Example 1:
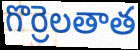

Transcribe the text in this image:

గొర్రెలతాత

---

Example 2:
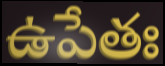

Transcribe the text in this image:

ఉపేతః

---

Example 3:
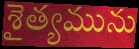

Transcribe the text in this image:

శైత్యమును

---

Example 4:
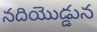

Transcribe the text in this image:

నదియొడ్డున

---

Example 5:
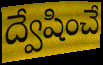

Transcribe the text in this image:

ద్వేషించే